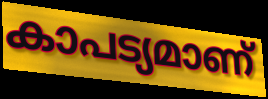
കാപട്യമാണ്